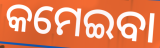
କମେଇବା